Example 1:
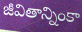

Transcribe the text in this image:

జీవితాన్నింకా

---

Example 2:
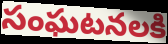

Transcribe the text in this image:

సంఘటనలకి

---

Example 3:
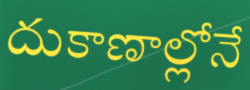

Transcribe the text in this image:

దుకాణాల్లోనే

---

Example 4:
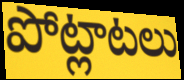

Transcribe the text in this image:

పోట్లాటలు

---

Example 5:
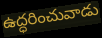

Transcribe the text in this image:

ఉద్ధరించువాడు